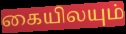
கையிலயும்